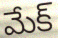
మేక్